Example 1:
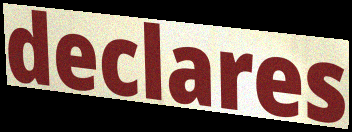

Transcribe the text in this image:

declares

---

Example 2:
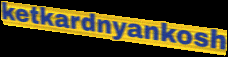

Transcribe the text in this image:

ketkardnyankosh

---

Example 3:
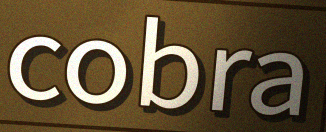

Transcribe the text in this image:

cobra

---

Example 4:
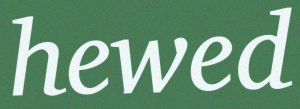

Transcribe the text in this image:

hewed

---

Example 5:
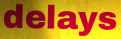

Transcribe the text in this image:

delays